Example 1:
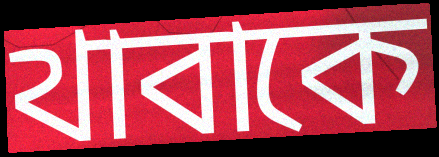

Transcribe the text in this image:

থাবাকে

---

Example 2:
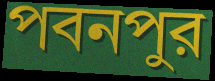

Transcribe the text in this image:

পবনপুর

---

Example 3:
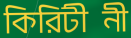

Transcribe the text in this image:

কিরিটীনী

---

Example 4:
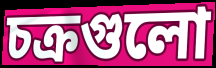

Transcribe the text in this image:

চক্রগুলো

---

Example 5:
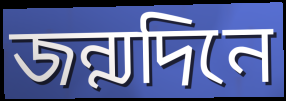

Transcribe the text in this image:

জন্মদিনে